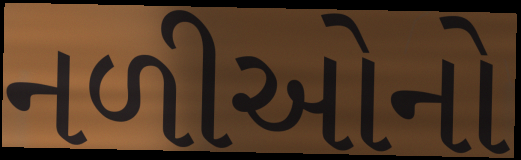
નળીઓનો